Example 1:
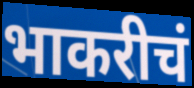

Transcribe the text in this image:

भाकरीचं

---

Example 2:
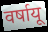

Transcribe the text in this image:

वर्षायू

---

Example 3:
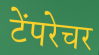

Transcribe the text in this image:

टेंपरेचर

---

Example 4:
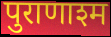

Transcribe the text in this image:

पुराणाश्म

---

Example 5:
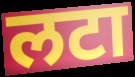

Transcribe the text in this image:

लटा